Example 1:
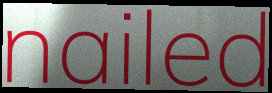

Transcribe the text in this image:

nailed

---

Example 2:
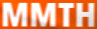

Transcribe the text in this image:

MMTH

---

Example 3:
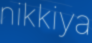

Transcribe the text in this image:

nikkiya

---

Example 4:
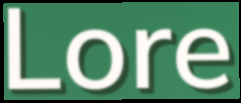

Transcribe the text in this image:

Lore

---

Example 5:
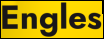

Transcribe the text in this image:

Engles